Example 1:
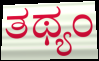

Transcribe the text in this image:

ತಥ್ಯಂ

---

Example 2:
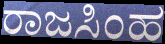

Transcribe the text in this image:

ರಾಜಸಿಂಹ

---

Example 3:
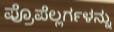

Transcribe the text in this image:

ಪ್ರೊಪೆಲ್ಲರ್ಗಳನ್ನು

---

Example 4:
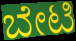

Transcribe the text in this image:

ಬೇಟಿ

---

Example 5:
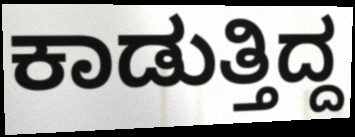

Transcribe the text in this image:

ಕಾಡುತ್ತಿದ್ದ